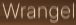
Wrangel